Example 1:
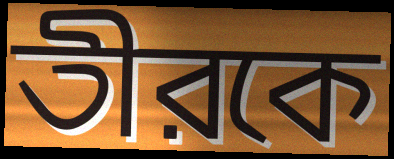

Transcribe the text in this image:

তীরকে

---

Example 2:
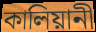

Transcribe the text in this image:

কালিয়ানী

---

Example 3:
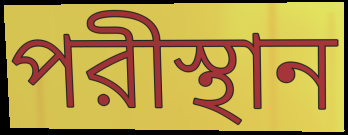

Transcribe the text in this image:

পরীস্থান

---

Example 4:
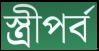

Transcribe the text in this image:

স্ত্রীপর্ব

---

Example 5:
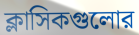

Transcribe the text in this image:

ক্লাসিকগুলোর